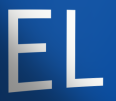
EL